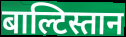
बाल्टिस्तान